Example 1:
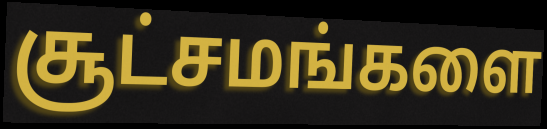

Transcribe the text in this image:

சூட்சமங்களை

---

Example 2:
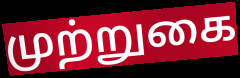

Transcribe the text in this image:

முற்றுகை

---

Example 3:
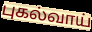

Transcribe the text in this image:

புகல்வாய்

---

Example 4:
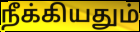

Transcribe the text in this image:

நீக்கியதும்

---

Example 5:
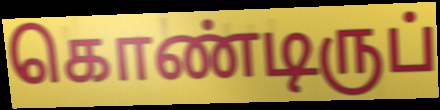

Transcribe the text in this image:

கொண்டிருப்